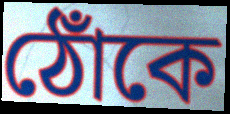
ঠোঁকে